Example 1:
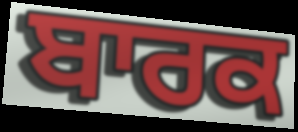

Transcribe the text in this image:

ਬਾਰਕ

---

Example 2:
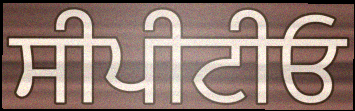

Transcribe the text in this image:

ਸੀਪੀਟੀਓ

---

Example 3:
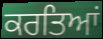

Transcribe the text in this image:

ਕਰਤਿਆਂ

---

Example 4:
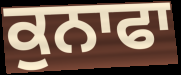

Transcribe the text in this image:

ਕੁਨਾਫਾ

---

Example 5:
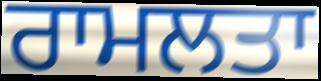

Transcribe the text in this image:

ਰਾਮਲਤਾ